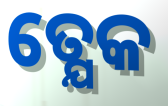
ତ୍ଯେକ